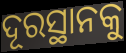
ଦୂରସ୍ଥାନକୁ